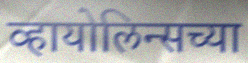
व्हायोलिन्सच्या